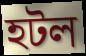
হটল